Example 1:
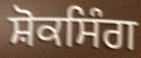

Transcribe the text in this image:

ਸ਼ੋਕਸਿੰਗ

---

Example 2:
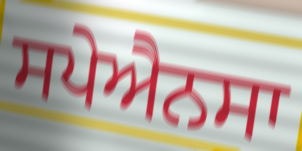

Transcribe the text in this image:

ਸਪੇਐਨਸਾ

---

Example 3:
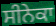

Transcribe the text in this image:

ਸੀਨੇਕਾ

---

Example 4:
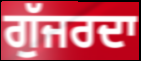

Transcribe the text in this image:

ਗੁੱਜਰਦਾ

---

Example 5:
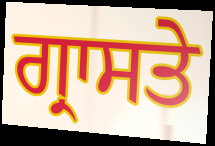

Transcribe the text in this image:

ਗ੍ਰਾਸਤੇ